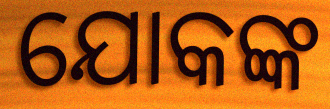
ଯୋକଙ୍କ